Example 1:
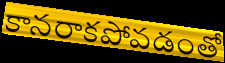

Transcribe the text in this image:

కానరాకపోవడంతో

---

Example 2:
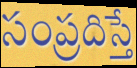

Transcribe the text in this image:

సంప్రదిస్తే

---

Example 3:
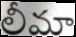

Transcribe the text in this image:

లీమా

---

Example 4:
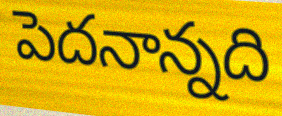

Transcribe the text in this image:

పెదనాన్నది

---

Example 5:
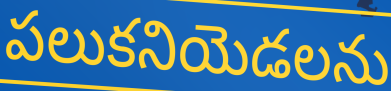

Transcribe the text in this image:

పలుకనియెడలను